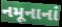
નમૂનાનાં